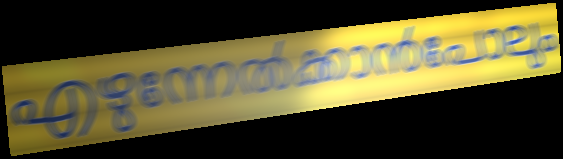
എഴുന്നേൽക്കാൻപോലും